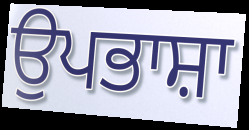
ਉਪਭਾਸ਼ਾ